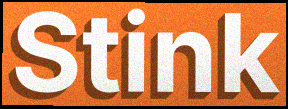
Stink